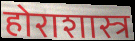
होराशास्त्र